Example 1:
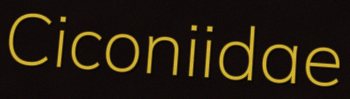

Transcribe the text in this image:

Ciconiidae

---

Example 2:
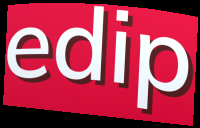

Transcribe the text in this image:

edip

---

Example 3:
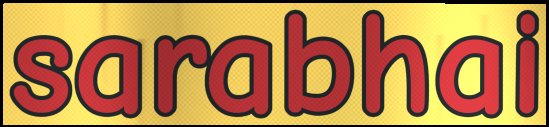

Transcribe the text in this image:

sarabhai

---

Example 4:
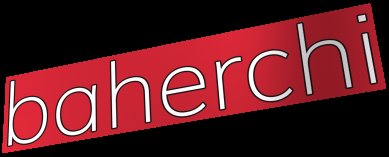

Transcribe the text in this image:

baherchi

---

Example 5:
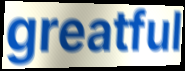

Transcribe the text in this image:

greatful